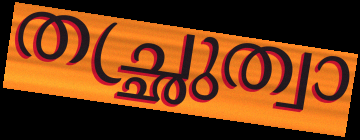
തച്ഛ്രുത്വാ